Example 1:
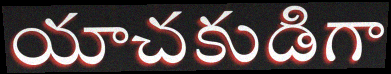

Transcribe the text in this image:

యాచకుడిగా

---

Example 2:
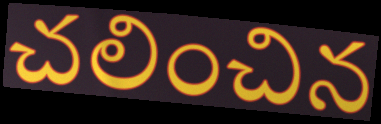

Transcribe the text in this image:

చలించిన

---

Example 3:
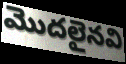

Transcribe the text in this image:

మొదలైనవి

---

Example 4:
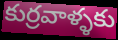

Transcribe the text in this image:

కుర్రవాళ్ళకు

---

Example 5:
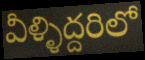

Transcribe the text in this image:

వీళ్ళిద్దరిలో